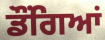
ਡੌਂਗਿਆਂ